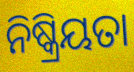
ନିଷ୍କ୍ରିୟତା